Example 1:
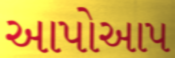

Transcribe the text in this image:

આપોઆપ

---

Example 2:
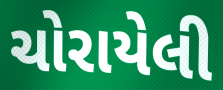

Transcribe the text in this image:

ચોરાયેલી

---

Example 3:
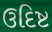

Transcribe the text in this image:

ઉદિષ્ટ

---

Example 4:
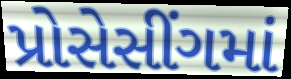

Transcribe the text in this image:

પ્રોસેસીંગમાં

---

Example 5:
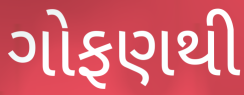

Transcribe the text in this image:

ગોફણથી